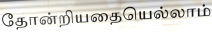
தோன்றியதையெல்லாம்